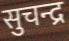
सुचन्द्र